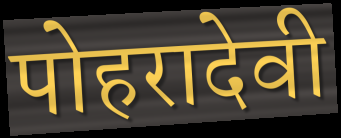
पोहरादेवी